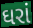
ઘરાં